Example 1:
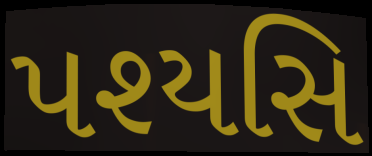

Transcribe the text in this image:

પશ્યસિ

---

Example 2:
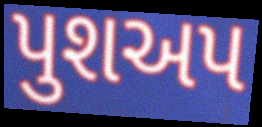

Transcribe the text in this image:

પુશઅપ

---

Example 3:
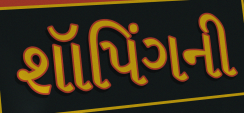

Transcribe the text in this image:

શૉપિંગની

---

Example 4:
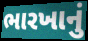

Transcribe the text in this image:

ભારખાનું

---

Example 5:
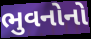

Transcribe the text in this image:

ભુવનોનો